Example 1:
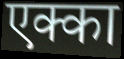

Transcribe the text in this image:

एक्का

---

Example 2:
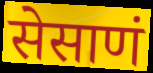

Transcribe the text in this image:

सेसाणं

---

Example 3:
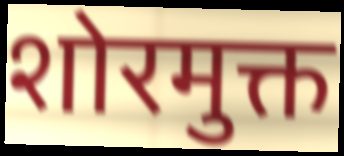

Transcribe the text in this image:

शोरमुक्त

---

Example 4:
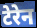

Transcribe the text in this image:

टेरेन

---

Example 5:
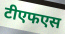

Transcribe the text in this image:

टीएफएस